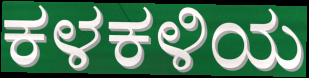
ಕಳಕಳಿಯ